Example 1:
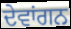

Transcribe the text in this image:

ਦੇਵਾਂਗਨ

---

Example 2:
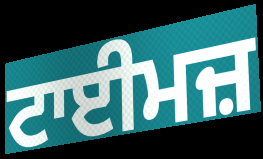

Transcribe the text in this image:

ਟਾਈਮਜ਼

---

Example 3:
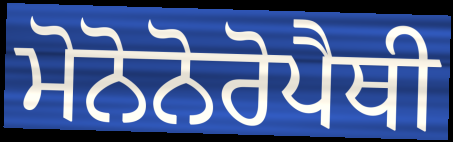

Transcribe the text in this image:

ਮੋਨੋਨੋਰੋਪੈਥੀ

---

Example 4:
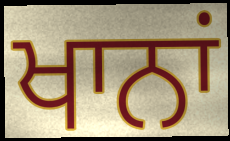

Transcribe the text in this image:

ਖਾਨਾਂ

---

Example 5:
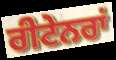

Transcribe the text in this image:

ਰੀਟੇਨਰਾਂ